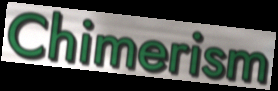
Chimerism